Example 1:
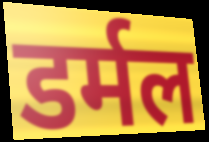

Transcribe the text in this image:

डर्मल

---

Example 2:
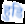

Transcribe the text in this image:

हुडि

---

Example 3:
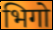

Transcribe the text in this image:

भिगो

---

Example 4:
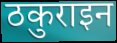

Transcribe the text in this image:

ठकुराइन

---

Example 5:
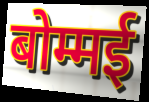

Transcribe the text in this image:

बोम्मई